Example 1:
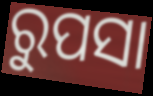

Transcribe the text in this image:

ରୁପସା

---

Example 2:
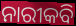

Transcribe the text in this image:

ନାରୀକବି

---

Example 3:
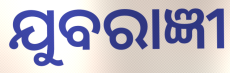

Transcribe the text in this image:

ଯୁବରାଜ୍ଞୀ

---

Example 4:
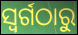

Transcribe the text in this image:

ସ୍ଵର୍ଗଠାରୁ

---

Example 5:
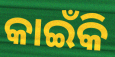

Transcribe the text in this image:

କାଇଁକି